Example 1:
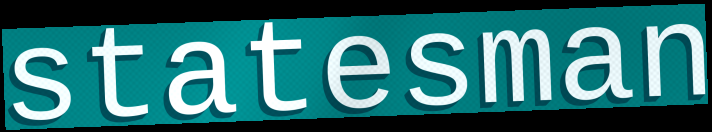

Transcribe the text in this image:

statesman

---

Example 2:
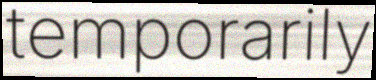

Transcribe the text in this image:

temporarily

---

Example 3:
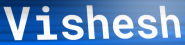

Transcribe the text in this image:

Vishesh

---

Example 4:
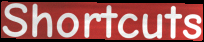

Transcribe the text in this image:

Shortcuts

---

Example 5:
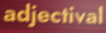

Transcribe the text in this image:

adjectival